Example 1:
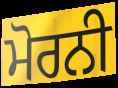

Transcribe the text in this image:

ਮੋਰਨੀ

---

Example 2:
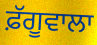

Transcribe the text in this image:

ਫ਼ੱਗੂਵਾਲਾ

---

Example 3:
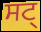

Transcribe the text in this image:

ਸਟ੍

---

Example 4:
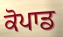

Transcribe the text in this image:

ਕੋਪਾਡ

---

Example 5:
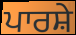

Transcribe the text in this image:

ਪਾਰਸ਼ੇ